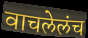
वाचलेलंच